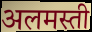
अलमस्ती